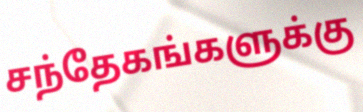
சந்தேகங்களுக்கு